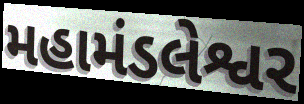
મહામંડલેશ્વર